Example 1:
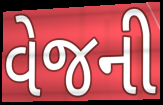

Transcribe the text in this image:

વેજની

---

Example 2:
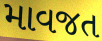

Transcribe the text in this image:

માવજત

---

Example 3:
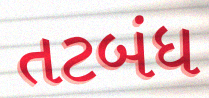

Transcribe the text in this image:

તટબંધ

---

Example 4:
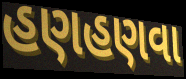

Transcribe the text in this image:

હણહણવા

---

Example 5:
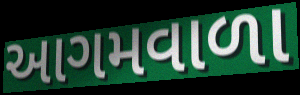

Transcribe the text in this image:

આગમવાળા